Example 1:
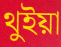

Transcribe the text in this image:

থুইয়া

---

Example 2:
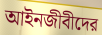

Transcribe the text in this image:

আইনজীবীদের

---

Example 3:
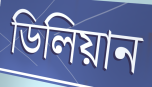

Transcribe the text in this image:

ডিলিয়ান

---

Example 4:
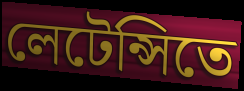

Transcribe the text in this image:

লেটেন্সিতে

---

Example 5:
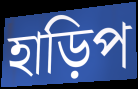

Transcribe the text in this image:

হাড়িপ